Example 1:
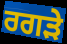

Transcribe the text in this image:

ਰਗੜੇ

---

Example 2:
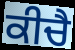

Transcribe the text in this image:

ਕੀਚੈ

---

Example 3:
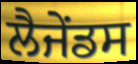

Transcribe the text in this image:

ਲੈਜੇਂਡਸ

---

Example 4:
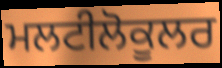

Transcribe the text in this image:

ਮਲਟੀਲੋਕੂਲਰ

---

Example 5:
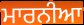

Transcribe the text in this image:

ਮਾਰਨੀਆ